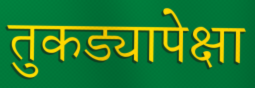
तुकड्यापेक्षा